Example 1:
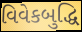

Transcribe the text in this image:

વિવેકબુદ્ધિ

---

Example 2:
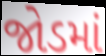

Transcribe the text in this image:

જોડમાં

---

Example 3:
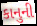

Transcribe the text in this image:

કાનુની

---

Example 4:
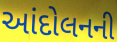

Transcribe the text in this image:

આંદોલનની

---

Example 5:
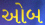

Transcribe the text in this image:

ઓબ